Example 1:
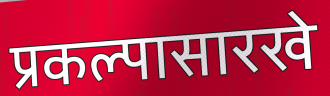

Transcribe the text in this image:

प्रकल्पासारखे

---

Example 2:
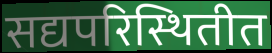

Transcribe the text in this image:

सद्यपरिस्थितीत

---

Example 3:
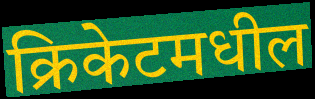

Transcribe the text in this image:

क्रिकेटमधील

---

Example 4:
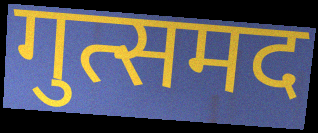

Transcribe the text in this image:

गुत्समद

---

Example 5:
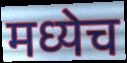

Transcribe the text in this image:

मध्‍येच